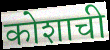
कोशाची